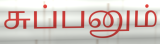
சுப்பனும்